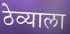
ठेव्याला